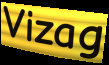
Vizag